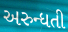
અરુન્ધતી